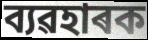
ব্যৱহাৰক